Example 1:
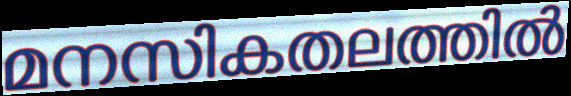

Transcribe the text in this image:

മനസികതലത്തിൽ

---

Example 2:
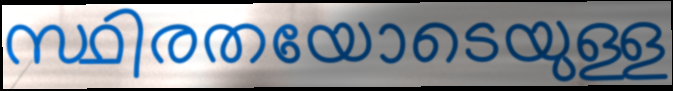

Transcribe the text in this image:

സ്ഥിരതയോടെയുള്ള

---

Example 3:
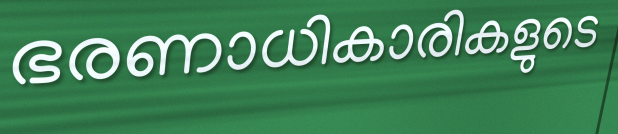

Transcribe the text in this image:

ഭരണാധികാരികളുടെ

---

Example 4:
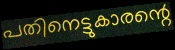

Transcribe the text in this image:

പതിനെട്ടുകാരന്റെ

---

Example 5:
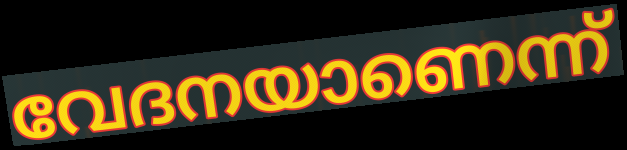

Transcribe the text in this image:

വേദനയാണെന്ന്